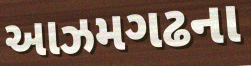
આઝમગઢના